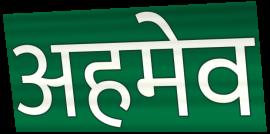
अहमेव